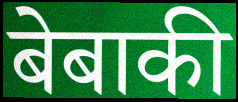
बेबाकी